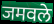
जमवले